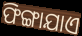
ଫିଙ୍ଗାଯାଏ